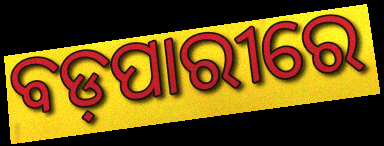
ବଡ଼ପାରୀରେ